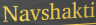
Navshakti